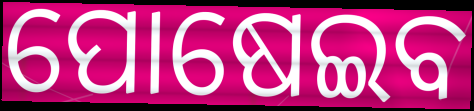
ପୋଷେଇବ